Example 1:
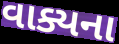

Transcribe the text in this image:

વાક્યના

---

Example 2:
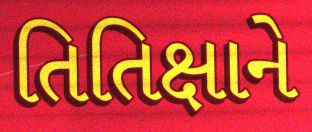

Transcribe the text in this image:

તિતિક્ષાને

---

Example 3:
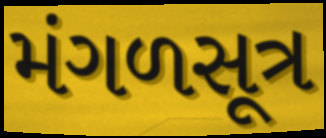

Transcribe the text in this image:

મંગળસૂત્ર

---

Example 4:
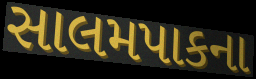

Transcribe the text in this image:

સાલમપાકના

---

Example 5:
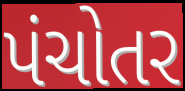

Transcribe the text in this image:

પંચોતર